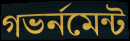
গভর্নমেন্ট